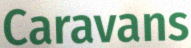
Caravans